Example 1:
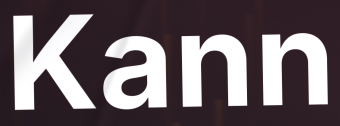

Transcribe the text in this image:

Kann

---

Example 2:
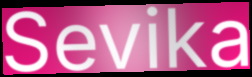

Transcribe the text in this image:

Sevika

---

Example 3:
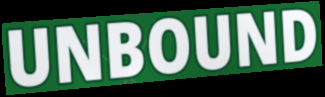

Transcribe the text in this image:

UNBOUND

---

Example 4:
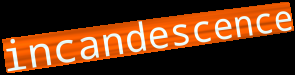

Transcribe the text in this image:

incandescence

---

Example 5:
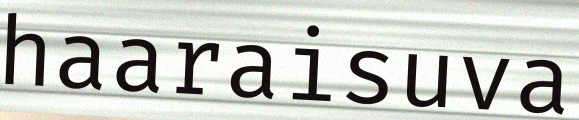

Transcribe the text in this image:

haaraisuva